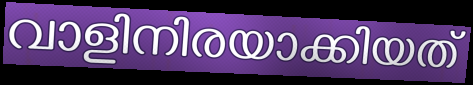
വാളിനിരയാക്കിയത്